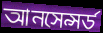
আনসেন্সর্ড